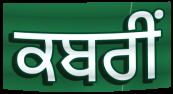
ਕਬਰੀਂ